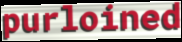
purloined